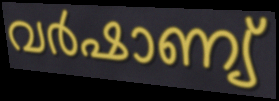
വർഷാണ്യ്